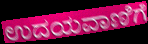
ಉದಯವಾಣಿಗೆ